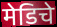
मेडिचे